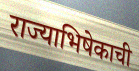
राज्याभिषेकाची